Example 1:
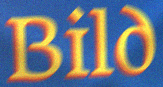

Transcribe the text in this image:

Bild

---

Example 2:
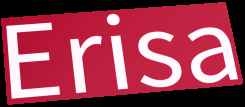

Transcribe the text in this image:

Erisa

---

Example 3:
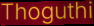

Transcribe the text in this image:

Thoguthi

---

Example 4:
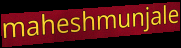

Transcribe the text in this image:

maheshmunjale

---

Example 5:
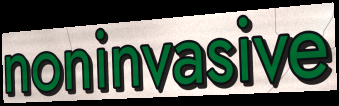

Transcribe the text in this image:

noninvasive